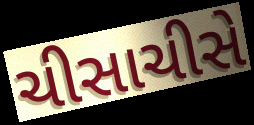
ચીસાચીસે